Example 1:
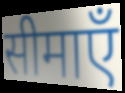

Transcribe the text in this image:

सीमाएँ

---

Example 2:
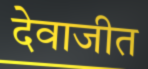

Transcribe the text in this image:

देवाजीत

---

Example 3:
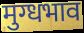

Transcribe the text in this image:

मुग्धभाव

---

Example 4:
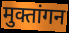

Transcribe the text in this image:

मुक्तांगन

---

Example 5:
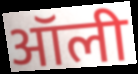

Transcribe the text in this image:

ऑली